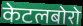
केटलबोरो